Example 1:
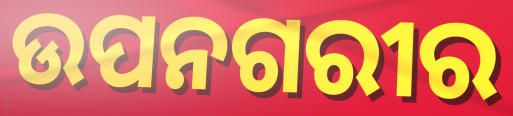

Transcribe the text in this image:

ଉପନଗରୀର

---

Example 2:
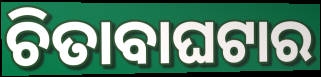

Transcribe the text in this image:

ଚିତାବାଘଟାର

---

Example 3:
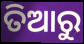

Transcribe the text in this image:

ତିଆରୁ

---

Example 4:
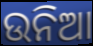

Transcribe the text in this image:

ଉନିଆ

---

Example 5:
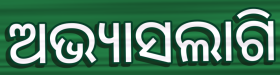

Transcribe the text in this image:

ଅଭ୍ୟାସଲାଗି